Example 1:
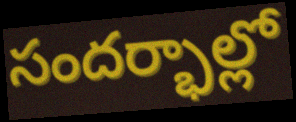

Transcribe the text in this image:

సందర్భాల్లో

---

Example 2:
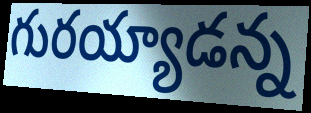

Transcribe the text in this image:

గురయ్యాడన్న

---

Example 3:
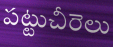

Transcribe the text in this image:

పట్టుచీరెలు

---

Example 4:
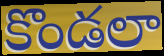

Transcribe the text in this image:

కొండలా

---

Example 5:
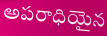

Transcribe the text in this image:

అపరాధియైన